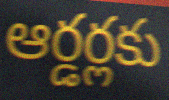
ఆర్డర్లకు